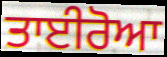
ਤਾਈਰੋਆ